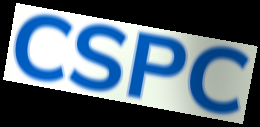
CSPC